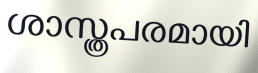
ശാസ്ത്രപരമായി